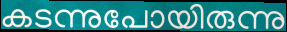
കടന്നുപോയിരുന്നു